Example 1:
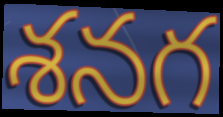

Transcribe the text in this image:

శనగ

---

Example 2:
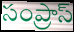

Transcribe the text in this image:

సంప్రాస్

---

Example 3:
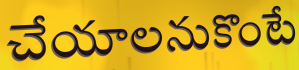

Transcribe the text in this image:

చేయాలనుకొంటే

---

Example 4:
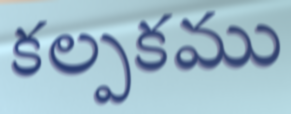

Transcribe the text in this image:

కల్పకము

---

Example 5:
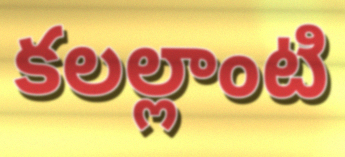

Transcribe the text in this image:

కలల్లాంటి